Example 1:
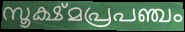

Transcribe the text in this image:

സൂക്ഷ്മപ്രപഞ്ചം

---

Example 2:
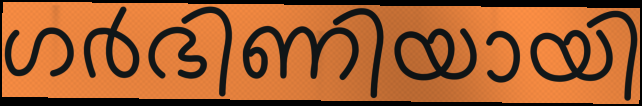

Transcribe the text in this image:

ഗർഭിണിയായി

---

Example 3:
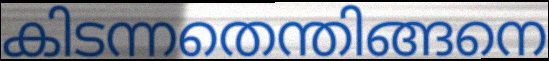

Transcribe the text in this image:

കിടന്നതെന്തിങ്ങനെ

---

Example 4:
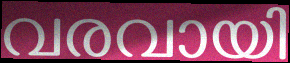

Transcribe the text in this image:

വരവായി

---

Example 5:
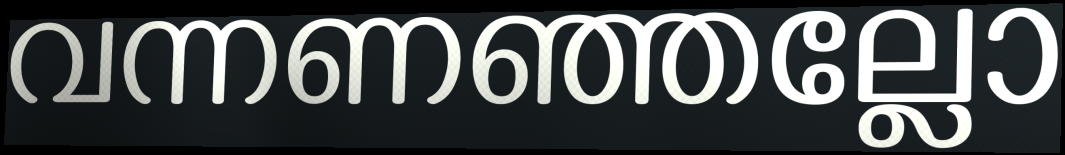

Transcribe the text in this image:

വന്നണഞ്ഞല്ലോ